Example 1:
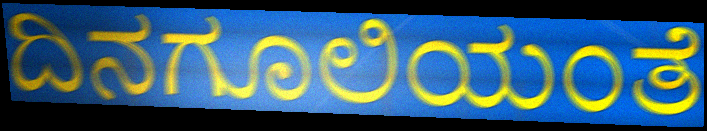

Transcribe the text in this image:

ದಿನಗೂಲಿಯಂತೆ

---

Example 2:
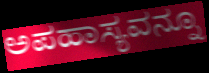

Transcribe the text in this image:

ಅಪಹಾಸ್ಯವನ್ನೂ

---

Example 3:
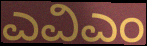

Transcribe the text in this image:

ಎವಿಎಂ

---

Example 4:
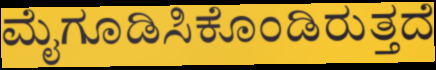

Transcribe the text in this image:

ಮೈಗೂಡಿಸಿಕೊಂಡಿರುತ್ತದೆ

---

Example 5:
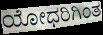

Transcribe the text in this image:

ಯೋಧರಿಗಿಂತ